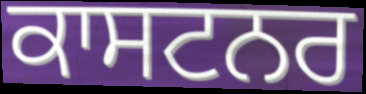
ਕਾਸਟਨਰ